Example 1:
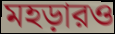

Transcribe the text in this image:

মহড়ারও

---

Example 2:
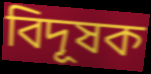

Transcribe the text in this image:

বিদূষক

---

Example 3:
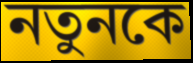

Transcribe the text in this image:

নতুনকে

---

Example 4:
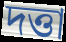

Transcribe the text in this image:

দত্তা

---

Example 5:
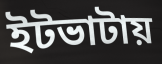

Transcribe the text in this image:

ইটভাটায়